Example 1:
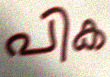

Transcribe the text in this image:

പിക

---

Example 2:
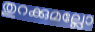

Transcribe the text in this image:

തുറക്കുമല്ലോ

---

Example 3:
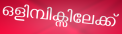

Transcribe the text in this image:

ഒളിമ്പിക്സിലേക്ക്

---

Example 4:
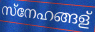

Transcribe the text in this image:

സ്നേഹങ്ങള്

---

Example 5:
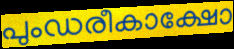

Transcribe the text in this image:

പുംഡരീകാക്ഷോ